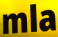
mla